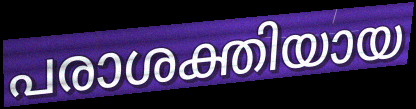
പരാശക്തിയായ